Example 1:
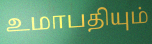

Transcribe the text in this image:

உமாபதியும்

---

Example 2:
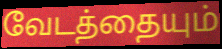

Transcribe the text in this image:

வேடத்தையும்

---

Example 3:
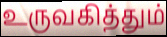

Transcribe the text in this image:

உருவகித்தும்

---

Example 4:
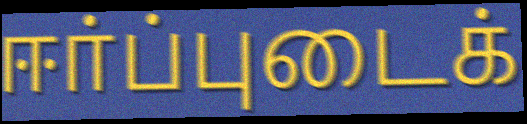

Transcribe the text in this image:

ஈர்ப்புடைக்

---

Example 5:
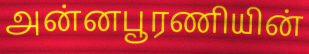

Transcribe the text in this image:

அன்னபூரணியின்